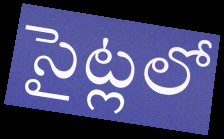
సైట్లలో